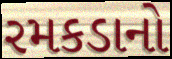
રમકડાનો